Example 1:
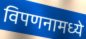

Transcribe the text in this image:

विपणनामध्ये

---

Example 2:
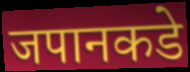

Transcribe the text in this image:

जपानकडे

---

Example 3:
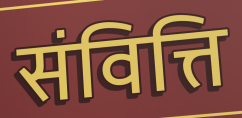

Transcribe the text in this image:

संवित्ति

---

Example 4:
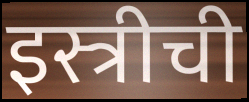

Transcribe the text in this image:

इस्त्रीची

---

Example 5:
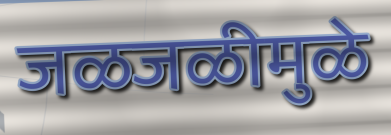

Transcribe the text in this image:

जळजळीमुळे